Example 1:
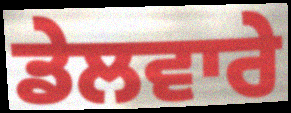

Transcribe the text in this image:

ਡੇਲਵਾਰੇ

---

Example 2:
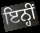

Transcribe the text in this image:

ਇਨ੍ਹੀਂ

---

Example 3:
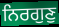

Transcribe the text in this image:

ਨਿਰਗੁਣੁ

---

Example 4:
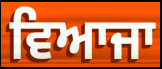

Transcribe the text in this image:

ਵਿਆਜਾ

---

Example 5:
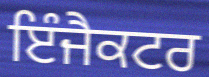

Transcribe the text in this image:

ਇੰਜੈਕਟਰ